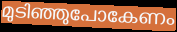
മുടിഞ്ഞുപോകേണം